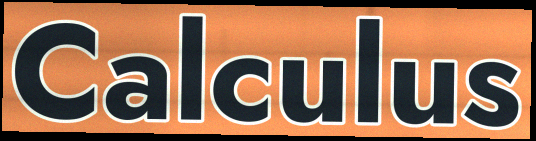
Calculus